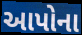
આપોના